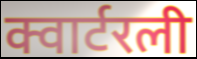
क्वार्टरली